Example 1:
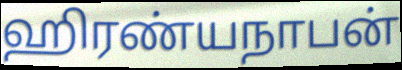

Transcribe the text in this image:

ஹிரண்யநாபன்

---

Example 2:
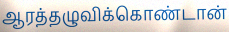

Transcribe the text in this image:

ஆரத்தழுவிக்கொண்டான்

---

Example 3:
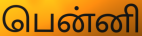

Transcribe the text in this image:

பென்னி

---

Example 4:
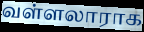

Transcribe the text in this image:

வள்ளலாராக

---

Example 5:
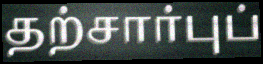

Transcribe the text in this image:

தற்சார்புப்